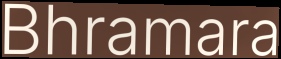
Bhramara